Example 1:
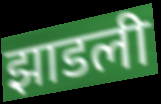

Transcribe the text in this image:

झाडली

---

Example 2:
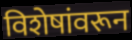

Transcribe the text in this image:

विशेषांवरून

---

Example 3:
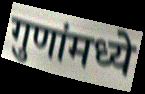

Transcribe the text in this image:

गुणांमध्ये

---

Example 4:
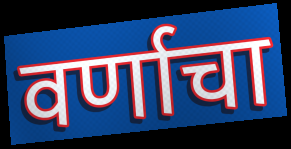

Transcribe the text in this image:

वर्णाचा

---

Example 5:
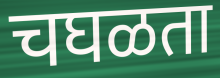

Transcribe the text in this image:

चघळता